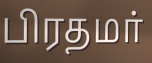
பிரதமர்